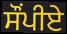
ਸੌਂਪੀਏ